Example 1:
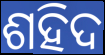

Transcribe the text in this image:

ଶହିଦ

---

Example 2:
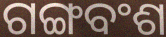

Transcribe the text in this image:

ଗଙ୍ଗବଂଶ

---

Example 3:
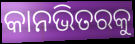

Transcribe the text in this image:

କାନଭିତରକୁ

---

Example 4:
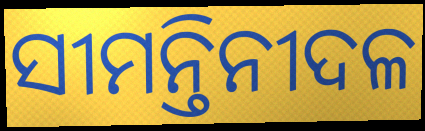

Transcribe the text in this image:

ସୀମନ୍ତିନୀଦଳ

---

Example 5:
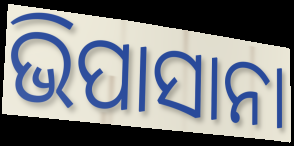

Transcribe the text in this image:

ଭିପାସାନା